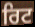
ਰਿਟ